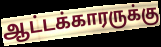
ஆட்டக்காரருக்கு